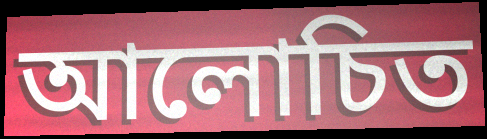
আলোচিত